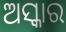
ଅସ୍କାର